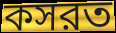
কসরত